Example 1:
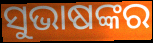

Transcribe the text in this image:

ସୁଭାଷଙ୍କର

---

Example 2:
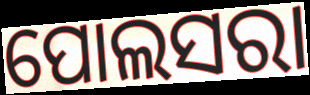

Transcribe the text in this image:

ପୋଲସରା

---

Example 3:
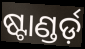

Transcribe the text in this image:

ଷ୍ଟାଣ୍ଡର୍ଡ଼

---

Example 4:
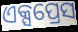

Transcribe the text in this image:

ଏକ୍ସପ୍ରେସ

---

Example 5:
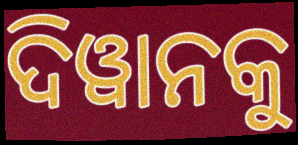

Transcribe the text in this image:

ଦିୱାନକୁ